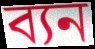
ব্যন